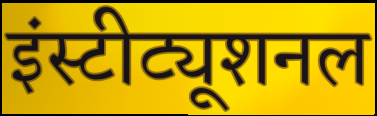
इंस्टीट्यूशनल